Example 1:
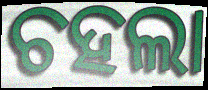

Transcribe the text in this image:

ଚହଲା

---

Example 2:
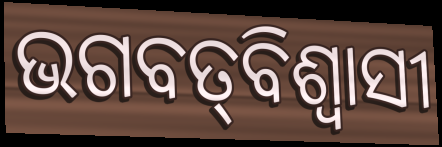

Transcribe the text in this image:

ଭଗବତ୍‌ବିଶ୍ଵାସୀ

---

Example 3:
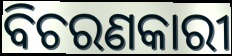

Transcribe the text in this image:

ବିଚରଣକାରୀ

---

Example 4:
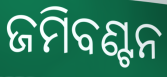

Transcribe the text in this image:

ଜମିବଣ୍ଟନ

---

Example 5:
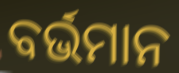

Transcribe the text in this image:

ବର୍ଭମାନ